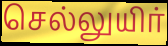
செல்லுயிர்